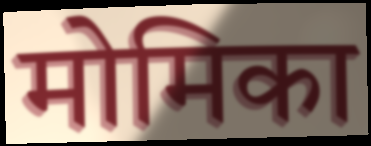
मोमिका